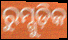
ରୁମ୍ଗୁଡ଼ିକ